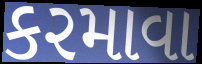
કરમાવા